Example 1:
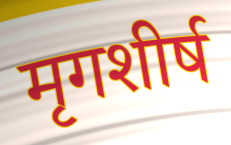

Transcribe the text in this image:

मृगशीर्ष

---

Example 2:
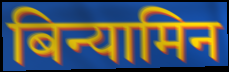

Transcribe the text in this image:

बिन्यामिन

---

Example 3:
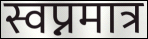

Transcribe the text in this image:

स्वप्नमात्र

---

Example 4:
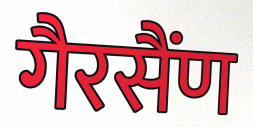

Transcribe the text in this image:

गैरसैंण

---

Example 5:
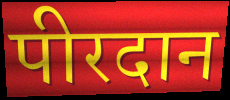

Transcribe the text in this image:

पीरदान